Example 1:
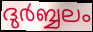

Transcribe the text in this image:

ദുർബ്ബലം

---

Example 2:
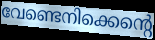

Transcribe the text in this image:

വേണ്ടെനിക്കെന്റെ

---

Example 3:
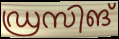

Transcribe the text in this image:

ഡ്രസിങ്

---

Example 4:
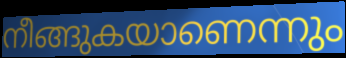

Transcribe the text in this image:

നീങ്ങുകയാണെന്നും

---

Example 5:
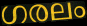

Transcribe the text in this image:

ഗരലം